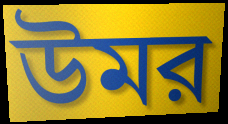
উমর